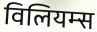
विलियम्स